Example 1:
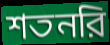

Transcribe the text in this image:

শতনরি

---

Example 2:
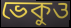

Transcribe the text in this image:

ভেকুও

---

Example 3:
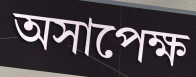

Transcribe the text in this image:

অসাপেক্ষ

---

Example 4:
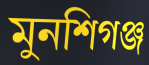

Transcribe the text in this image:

মুনশিগঞ্জ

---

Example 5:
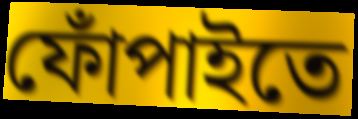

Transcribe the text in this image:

ফোঁপাইতে